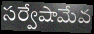
సర్వేషామేవ